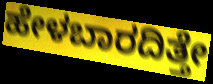
ಹೇಳಬಾರದಿತ್ತೇ